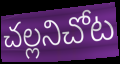
చల్లనిచోట